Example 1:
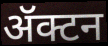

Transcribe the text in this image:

ॲक्टन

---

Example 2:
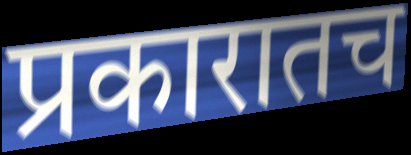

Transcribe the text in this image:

प्रकारातच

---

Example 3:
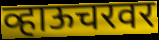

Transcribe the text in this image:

व्हाऊचरवर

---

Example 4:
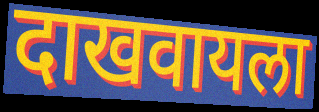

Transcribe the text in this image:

दाखवायला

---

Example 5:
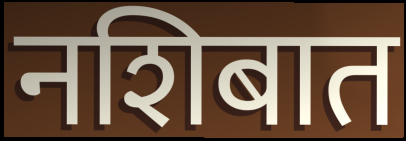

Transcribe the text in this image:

नशिबात